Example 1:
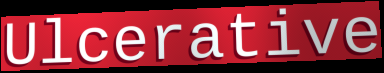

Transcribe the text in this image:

Ulcerative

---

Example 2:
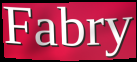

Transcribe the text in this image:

Fabry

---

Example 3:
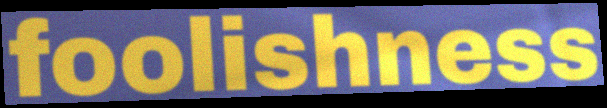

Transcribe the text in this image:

foolishness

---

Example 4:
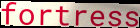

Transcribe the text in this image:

fortress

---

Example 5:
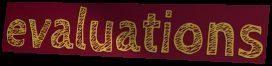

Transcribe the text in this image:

evaluations